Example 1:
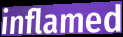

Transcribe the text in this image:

inflamed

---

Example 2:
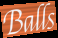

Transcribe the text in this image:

Balls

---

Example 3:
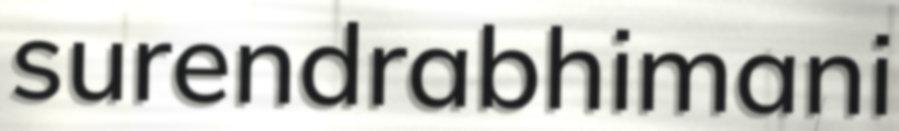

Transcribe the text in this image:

surendrabhimani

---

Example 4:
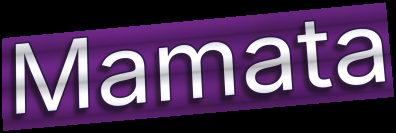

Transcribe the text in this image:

Mamata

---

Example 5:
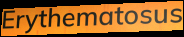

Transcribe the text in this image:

Erythematosus